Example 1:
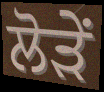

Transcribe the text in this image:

ਲੋੜੇਂ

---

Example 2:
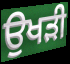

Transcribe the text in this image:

ਉਖੜੀ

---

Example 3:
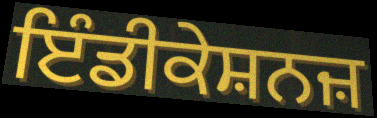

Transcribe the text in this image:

ਇੰਡੀਕੇਸ਼ਨਜ਼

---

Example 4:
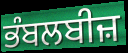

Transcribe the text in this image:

ਭੰਬਲਬੀਜ਼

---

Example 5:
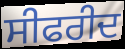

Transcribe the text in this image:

ਸੀਫਰੀਦ